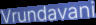
Vrundavani